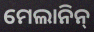
ମେଲାନିନ୍